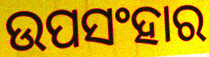
ଉପସଂହାର